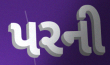
પરની